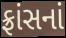
ફ્રાંસનાં